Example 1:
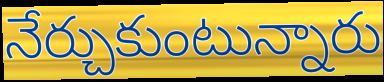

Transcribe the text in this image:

నేర్చుకుంటున్నారు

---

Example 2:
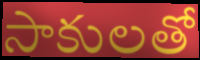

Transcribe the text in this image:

సాకులతో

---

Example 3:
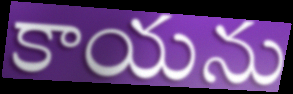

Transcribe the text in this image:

కాయను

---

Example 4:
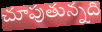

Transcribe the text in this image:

చూపుతున్నది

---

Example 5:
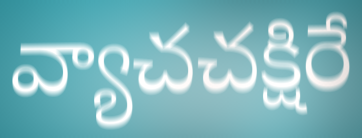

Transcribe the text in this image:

వ్యాచచక్షిరే